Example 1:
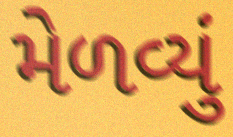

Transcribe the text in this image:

મેળવ્યું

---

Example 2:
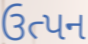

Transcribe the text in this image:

ઉત્પન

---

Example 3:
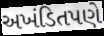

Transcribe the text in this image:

અખંડિતપણે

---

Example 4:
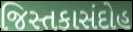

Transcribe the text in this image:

જિસ્તકાસંદોહ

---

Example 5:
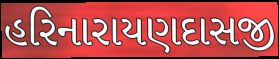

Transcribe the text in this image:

હરિનારાયણદાસજી